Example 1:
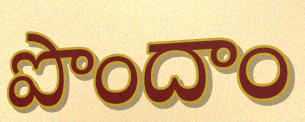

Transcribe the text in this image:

పొందాం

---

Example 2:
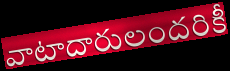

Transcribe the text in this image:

వాటాదారులందరికీ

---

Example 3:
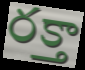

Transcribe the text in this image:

రక్తా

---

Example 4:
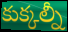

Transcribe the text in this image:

కుక్కల్నీ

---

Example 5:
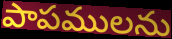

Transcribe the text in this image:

పాపములను